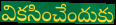
వికసించేందుకు